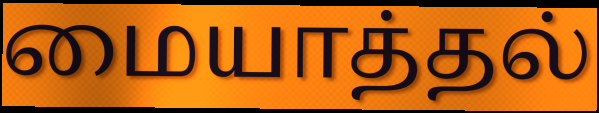
மையாத்தல்